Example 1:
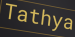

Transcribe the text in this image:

Tathya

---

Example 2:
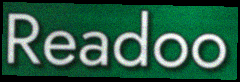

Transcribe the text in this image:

Readoo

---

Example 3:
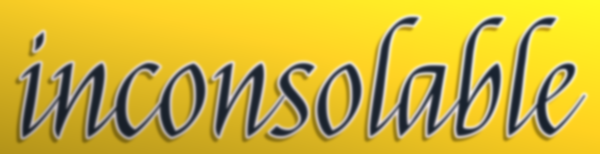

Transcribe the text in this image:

inconsolable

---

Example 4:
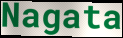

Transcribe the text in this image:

Nagata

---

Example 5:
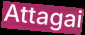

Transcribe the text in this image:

Attagai